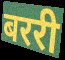
बररी